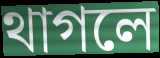
থাগলে